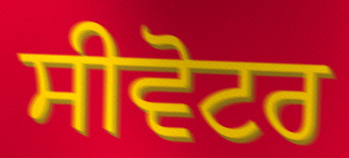
ਸੀਵੋਟਰ